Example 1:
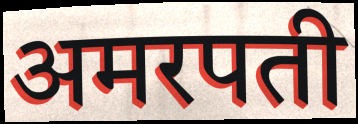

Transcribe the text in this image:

अमरपती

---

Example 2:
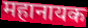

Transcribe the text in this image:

महानायक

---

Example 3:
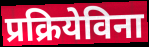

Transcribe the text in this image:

प्रक्रियेविना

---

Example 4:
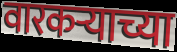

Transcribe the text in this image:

वारकऱ्याच्या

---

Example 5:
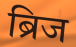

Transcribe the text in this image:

ब्रिज